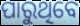
ପାରୁଥିବେ